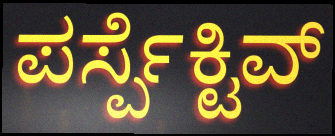
ಪರ್ಸ್ಪೆಕ್ಟಿವ್